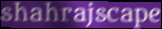
shahrajscape